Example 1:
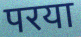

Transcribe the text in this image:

परया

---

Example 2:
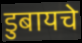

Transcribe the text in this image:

डुबायचे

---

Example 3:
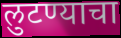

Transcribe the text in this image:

लुटण्याचा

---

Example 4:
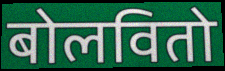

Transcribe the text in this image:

बोलवितो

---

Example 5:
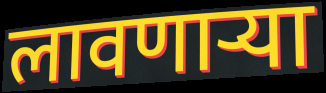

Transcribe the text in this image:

लावणाऱ्या